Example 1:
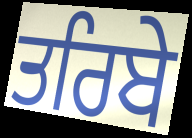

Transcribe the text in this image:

ਤਰਿਬੇ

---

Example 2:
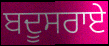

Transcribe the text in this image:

ਬਦੂਸਰਾਏ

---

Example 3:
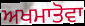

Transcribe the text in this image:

ਅਖਮਾਤੋਵਾ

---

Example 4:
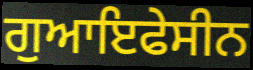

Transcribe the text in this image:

ਗੁਆਇਫੇਸੀਨ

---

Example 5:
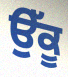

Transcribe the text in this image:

ਉੱਕੂ